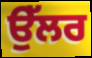
ਉੱਲਰ